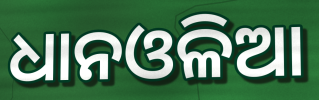
ଧାନଓଳିଆ